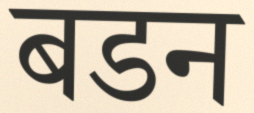
बडन